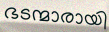
ഭടന്മാരായി